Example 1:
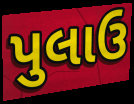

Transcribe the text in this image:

પુલાઉ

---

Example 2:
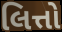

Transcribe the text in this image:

લિત્તો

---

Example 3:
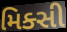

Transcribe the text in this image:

મિક્સી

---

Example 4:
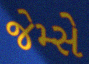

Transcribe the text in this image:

જેમ્સે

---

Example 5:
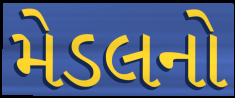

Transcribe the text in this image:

મેડલનો